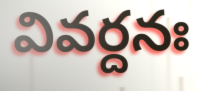
వివర్దనః